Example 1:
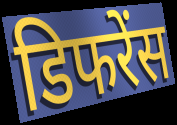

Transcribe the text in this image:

डिफरेंस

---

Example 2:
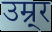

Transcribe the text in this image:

उम्र्र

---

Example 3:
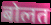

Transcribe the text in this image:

बोलत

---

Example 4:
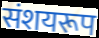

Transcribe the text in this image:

संशयरूप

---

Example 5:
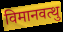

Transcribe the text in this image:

विमानवत्थु